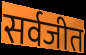
सर्वजीत